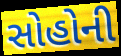
સોહોની